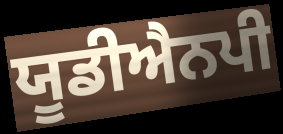
ਯੂਡੀਐਨਪੀ